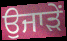
ਉਜਾੜੇਂ